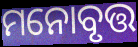
ମନୋବୃତ୍ତ